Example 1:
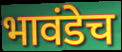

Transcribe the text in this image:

भावंडेच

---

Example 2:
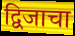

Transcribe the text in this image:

द्विजाचा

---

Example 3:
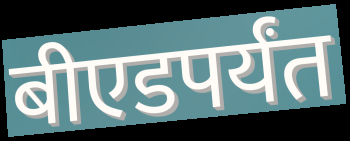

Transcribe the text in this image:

बीएडपर्यंत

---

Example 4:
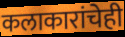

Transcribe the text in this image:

कलाकारांचेही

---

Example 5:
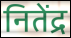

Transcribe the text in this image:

नितेंद्र